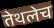
तेथलेच